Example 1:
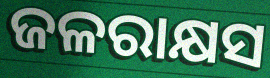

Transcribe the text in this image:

ଜଳରାକ୍ଷସ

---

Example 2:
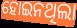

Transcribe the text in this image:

ହୋଇନଥିଲା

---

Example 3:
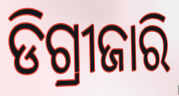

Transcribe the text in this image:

ଡିଗ୍ରୀଜାରି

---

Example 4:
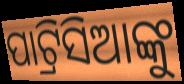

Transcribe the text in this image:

ପାଟ୍ରିସିଆଙ୍କୁ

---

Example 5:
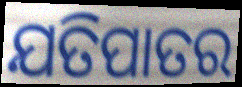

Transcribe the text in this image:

ଯତିପାତର